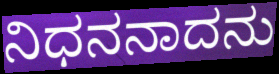
ನಿಧನನಾದನು